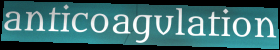
anticoagulation